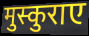
मुस्कुराए